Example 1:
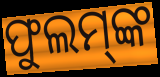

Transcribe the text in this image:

ଫୁଲମ୍‌ଙ୍କ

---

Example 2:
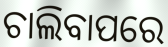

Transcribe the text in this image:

ଚାଲିବାପରେ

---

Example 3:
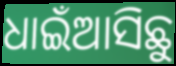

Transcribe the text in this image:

ଧାଇଁଆସିଛୁ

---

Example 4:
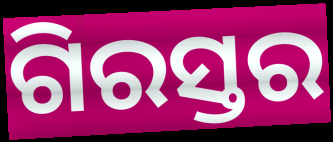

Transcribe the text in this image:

ଗିରସ୍ତର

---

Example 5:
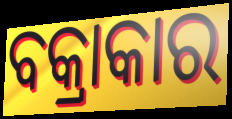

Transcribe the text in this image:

ବକ୍ରାକାର